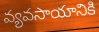
వ్యవసాయానికి